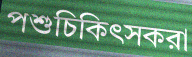
পশুচিকিৎসকরা